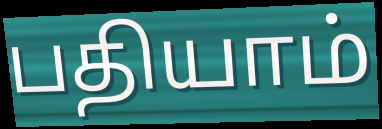
பதியாம்